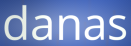
danas